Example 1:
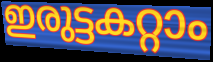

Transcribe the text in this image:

ഇരുട്ടകറ്റാം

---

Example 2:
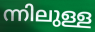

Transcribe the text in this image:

ന്നിലുള്ള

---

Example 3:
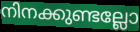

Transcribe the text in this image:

നിനക്കുണ്ടല്ലോ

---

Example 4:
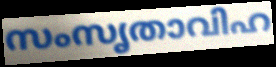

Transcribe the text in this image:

സംസൃതാവിഹ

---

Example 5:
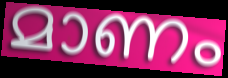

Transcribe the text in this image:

മാണം